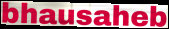
bhausaheb